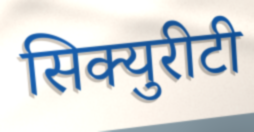
सिक्युरीटी